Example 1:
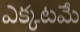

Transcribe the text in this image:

ఎక్కటమే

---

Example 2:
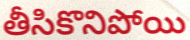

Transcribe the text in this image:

తీసికొనిపోయి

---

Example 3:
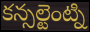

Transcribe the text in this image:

కన్సల్టెంట్ని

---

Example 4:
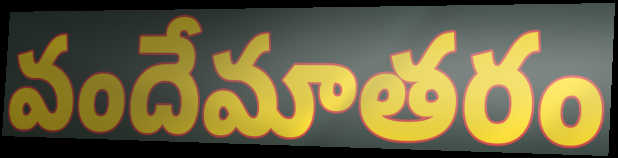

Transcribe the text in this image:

వందేమాతరం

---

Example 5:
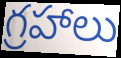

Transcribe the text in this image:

గ్రహాలు